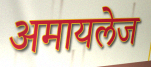
अमायलेज